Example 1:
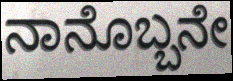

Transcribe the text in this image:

ನಾನೊಬ್ಬನೇ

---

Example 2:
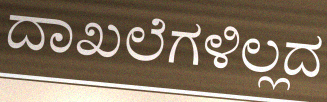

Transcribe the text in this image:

ದಾಖಲೆಗಳಿಲ್ಲದ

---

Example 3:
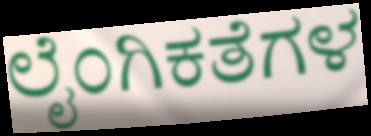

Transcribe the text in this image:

ಲೈಂಗಿಕತೆಗಳ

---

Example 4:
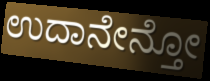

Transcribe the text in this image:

ಉದಾನೇನ್ತೋ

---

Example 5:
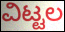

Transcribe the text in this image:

ವಿಟ್ಟಲ